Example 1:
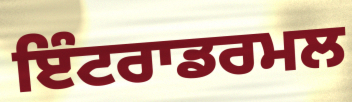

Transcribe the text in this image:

ਇੰਟਰਾਡਰਮਲ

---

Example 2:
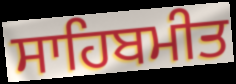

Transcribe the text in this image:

ਸਾਹਿਬਮੀਤ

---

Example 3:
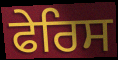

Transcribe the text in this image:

ਫੇਰਿਸ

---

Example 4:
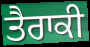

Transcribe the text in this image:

ਤੈਰਾਕੀ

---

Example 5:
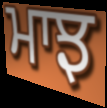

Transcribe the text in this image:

ਮਾਝ